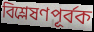
বিশ্লেষণপূর্বক